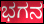
ಭಗನ